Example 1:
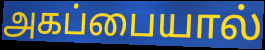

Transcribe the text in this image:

அகப்பையால்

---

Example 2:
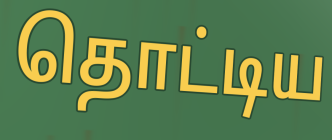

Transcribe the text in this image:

தொட்டிய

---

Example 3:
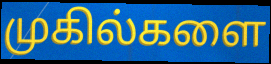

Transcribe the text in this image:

முகில்களை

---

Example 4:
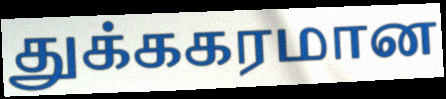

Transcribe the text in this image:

துக்ககரமான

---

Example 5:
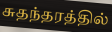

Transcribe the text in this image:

சுதந்தரத்தில்